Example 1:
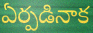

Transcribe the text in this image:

ఏర్పడినాక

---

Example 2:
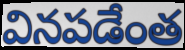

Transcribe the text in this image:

వినపడేంత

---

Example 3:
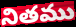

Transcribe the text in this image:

నితము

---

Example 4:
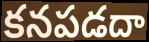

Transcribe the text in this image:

కనపడదా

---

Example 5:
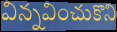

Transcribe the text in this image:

విన్నవించుకొని